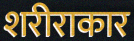
शरीराकार